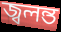
জ্বলন্ত